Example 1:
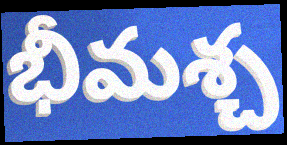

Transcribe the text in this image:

భీమశ్చ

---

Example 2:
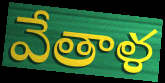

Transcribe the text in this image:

వేతాళ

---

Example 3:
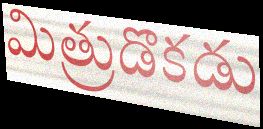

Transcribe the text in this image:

మిత్రుడొకడు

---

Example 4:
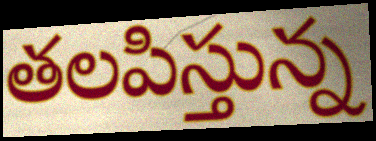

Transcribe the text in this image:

తలపిస్తున్న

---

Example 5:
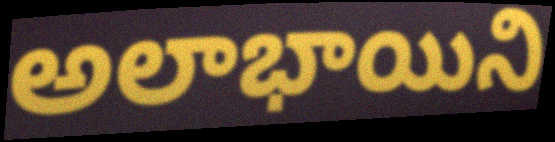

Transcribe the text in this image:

అలాభాయిని